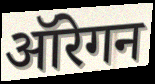
ऑरेगन